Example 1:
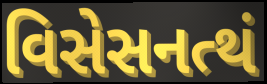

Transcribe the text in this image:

વિસેસનત્થં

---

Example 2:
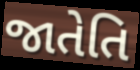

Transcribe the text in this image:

જાતેતિ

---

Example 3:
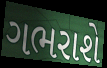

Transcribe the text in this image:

ગભરાશે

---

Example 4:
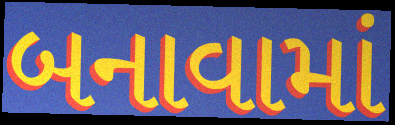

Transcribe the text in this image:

બનાવામાં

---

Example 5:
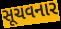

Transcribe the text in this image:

સૂચવનાર